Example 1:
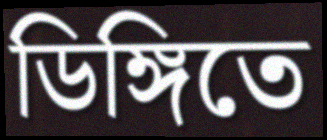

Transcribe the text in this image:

ডিঙ্গিতে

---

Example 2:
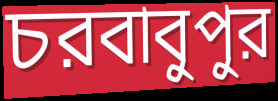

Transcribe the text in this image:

চরবাবুপুর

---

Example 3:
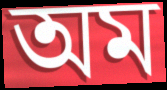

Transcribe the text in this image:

অম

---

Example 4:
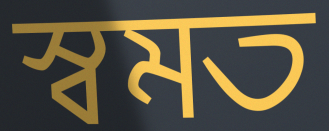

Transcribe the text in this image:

স্বমত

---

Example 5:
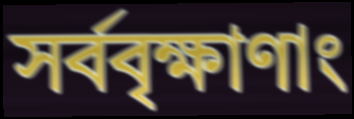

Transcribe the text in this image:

সর্ববৃক্ষাণাং